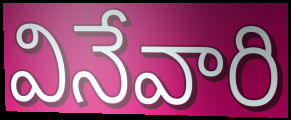
వినేవారి